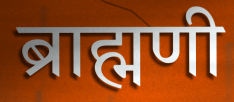
ब्राह्मणी